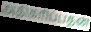
அதிகரிப்பதன்